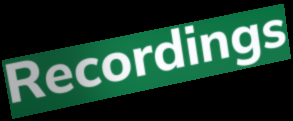
Recordings